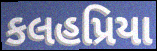
કલહપ્રિયા